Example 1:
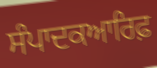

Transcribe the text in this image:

ਸੰਪਾਦਕਆਰਿਫ਼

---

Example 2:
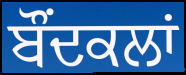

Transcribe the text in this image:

ਬੌਂਦਕਲਾਂ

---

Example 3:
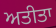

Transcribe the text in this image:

ਅਤੀਤਾ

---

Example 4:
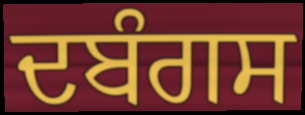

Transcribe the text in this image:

ਦਬੰਗਸ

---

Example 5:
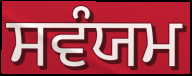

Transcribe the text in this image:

ਸਵੰਯਮ